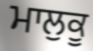
ਮਾਲੁਕੂ